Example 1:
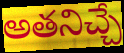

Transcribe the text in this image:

అతనిచ్చే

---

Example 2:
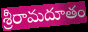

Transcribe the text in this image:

శ్రీరామదూతం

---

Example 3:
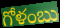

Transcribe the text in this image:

గోళంబు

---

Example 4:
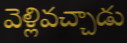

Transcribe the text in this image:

వెళ్లివచ్చాడు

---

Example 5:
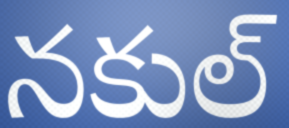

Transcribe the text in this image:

నకుల్